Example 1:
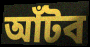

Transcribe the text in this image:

আঁটব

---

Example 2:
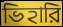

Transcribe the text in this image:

ভিহারি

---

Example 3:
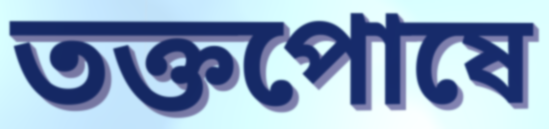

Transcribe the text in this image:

তক্তপোষে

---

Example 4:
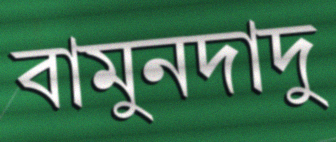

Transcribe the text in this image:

বামুনদাদু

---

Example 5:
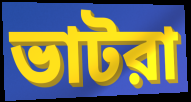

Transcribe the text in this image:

ভাটরা